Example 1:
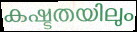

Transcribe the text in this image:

കഷ്ടതയിലും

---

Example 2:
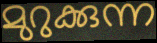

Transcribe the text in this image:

മുറുക്കുന്ന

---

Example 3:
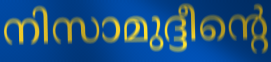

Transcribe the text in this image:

നിസാമുദ്ദീന്റെ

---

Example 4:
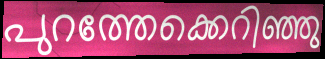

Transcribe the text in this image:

പുറത്തേക്കെറിഞ്ഞു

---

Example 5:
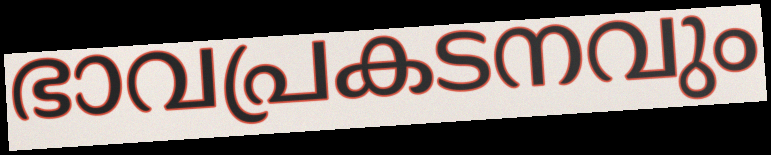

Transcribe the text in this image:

ഭാവപ്രകടനവും